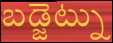
బడ్జెట్ను